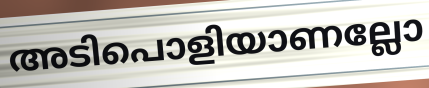
അടിപൊളിയാണല്ലോ